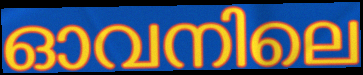
ഓവനിലെ